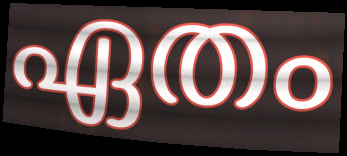
ഏതം